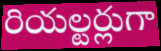
రియల్టర్లుగా